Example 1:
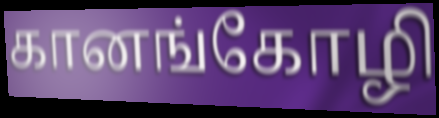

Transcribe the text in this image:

கானங்கோழி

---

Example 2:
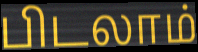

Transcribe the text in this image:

பிடலாம்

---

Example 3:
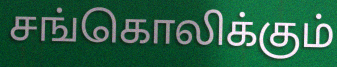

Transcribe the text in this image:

சங்கொலிக்கும்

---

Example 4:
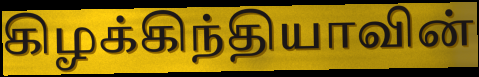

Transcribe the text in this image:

கிழக்கிந்தியாவின்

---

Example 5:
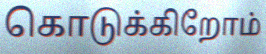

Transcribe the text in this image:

கொடுக்கிறோம்